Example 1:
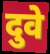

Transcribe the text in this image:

दुवे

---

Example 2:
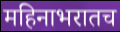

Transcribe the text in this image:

महिनाभरातच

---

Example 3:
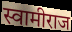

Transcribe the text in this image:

स्वामीराज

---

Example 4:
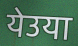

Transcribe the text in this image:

येउया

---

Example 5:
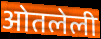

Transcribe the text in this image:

ओतलेली